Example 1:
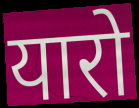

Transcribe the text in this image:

यारो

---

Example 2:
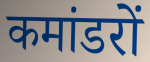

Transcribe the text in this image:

कमांडरों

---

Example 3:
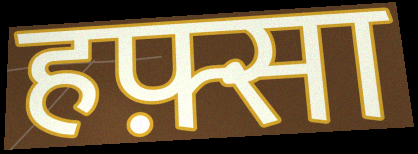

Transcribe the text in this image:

हफ़्सा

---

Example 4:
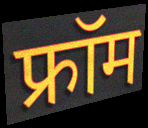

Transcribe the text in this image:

फ्रॉम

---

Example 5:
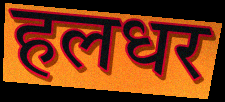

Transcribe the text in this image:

हलधर